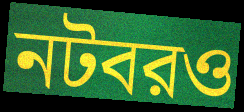
নটবরও